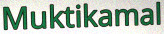
Muktikamal